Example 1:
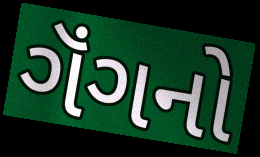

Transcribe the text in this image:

ગૅંગનો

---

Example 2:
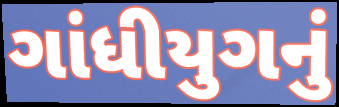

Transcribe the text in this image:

ગાંધીયુગનું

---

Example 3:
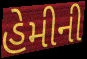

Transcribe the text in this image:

હેમીની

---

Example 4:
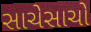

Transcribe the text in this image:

સાચેસાચો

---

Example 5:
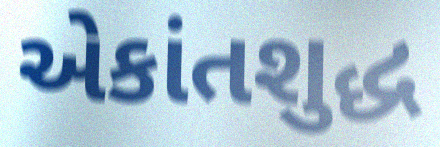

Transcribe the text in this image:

એકાંતશુદ્ધ